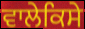
ਵਾਲੇਕਿਸੇ